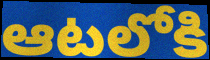
ఆటలోకి